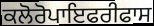
ਕਲੋਰੋਪਾਇਫਰੀਫਾਸ